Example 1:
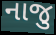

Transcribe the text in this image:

નાજુ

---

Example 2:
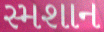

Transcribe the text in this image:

સ્મશાન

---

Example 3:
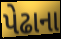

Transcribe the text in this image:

પેઢાના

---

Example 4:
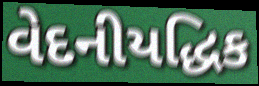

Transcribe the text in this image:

વેદનીયદ્ધિક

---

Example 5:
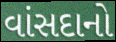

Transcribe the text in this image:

વાંસદાનો